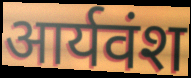
आर्यवंश